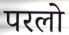
परलो